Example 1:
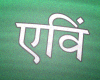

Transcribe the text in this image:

एविं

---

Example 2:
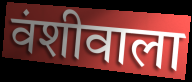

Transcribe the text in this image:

वंशीवाला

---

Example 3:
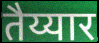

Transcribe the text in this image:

तैय्यार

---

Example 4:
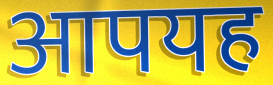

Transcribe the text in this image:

आपयह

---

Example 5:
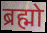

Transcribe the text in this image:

ब्रह्मो